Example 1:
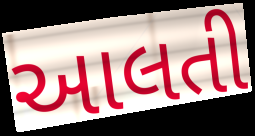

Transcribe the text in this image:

આલતી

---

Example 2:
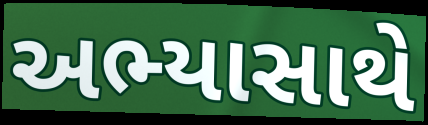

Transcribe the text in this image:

અભ્યાસાથે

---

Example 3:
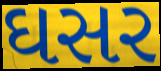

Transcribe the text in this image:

ઘસર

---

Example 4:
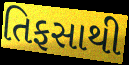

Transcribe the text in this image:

તિફસાથી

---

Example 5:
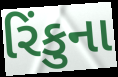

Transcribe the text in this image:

રિંકુના